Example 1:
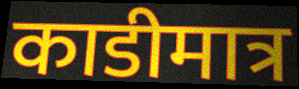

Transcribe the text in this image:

काडीमात्र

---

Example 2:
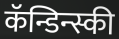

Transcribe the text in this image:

कॅन्डिन्स्की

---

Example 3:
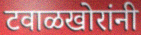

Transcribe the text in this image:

टवाळखोरांनी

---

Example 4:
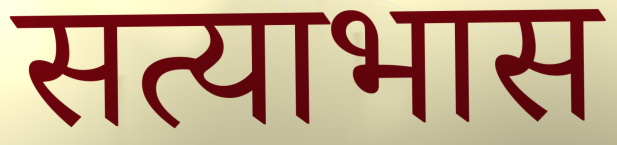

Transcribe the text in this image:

सत्याभास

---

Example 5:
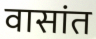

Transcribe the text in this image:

वासांत